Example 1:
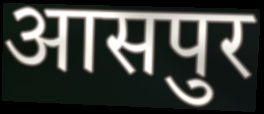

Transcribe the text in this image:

आसपुर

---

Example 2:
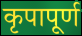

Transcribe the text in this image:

कृपापूर्ण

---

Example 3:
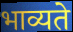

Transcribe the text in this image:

भाव्यते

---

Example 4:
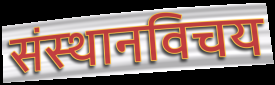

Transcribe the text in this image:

संस्थानविचय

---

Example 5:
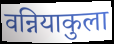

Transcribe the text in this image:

वन्नियाकुला